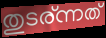
തുടര്ന്നത്